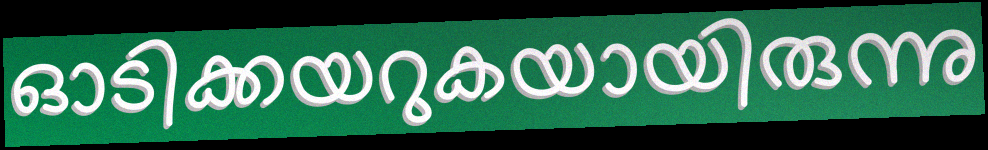
ഓടിക്കയറുകയായിരുന്നു